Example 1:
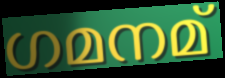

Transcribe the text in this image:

ഗമനമ്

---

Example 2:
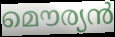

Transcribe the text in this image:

മൌര്യൻ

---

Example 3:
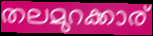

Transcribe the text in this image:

തലമുറക്കാര്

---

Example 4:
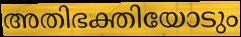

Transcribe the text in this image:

അതിഭക്തിയോടും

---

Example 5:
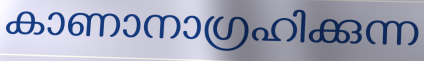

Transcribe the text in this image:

കാണാനാഗ്രഹിക്കുന്ന